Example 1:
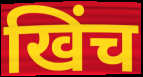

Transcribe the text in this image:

खिंच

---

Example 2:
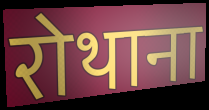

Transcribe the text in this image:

रोथाना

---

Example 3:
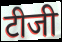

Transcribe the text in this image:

टीजी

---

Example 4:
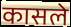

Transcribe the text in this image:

कासले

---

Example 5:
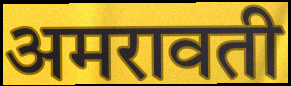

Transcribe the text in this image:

अमरावती